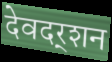
देवदर्शन